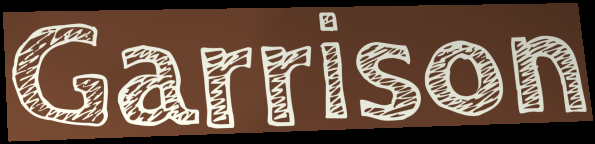
Garrison